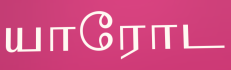
யாரோட